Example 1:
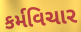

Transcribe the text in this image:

કર્મવિચાર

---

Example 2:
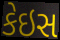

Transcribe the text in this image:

કેઇસ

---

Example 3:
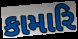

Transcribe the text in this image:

કામારિ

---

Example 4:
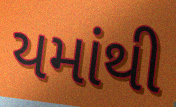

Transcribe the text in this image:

યમાંથી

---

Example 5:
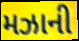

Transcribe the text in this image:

મઝાની